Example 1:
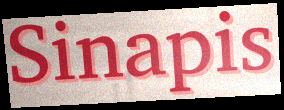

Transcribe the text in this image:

Sinapis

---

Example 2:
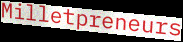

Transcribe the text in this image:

Milletpreneurs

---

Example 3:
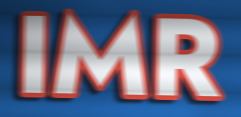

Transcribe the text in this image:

IMR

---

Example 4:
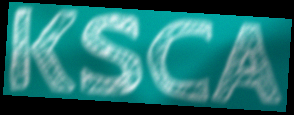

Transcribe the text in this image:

KSCA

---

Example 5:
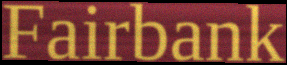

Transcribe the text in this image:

Fairbank